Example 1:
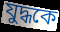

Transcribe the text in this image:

যুদ্ধকে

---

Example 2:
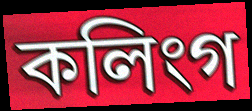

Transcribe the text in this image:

কলিংগ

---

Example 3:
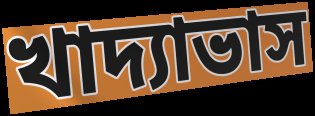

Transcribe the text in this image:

খাদ্যাভাস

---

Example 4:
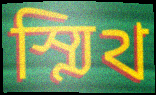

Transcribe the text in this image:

স্মিথ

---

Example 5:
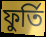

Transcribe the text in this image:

ফুৰ্তি